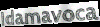
Idamavoca